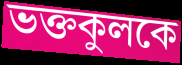
ভক্তকুলকে